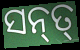
ସନ୍‌ତ୍